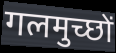
गलमुच्छों